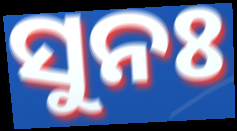
ସୁନଃ